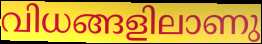
വിധങ്ങളിലാണു